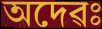
অদেৱঃ